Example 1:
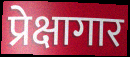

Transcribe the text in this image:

प्रेक्षागार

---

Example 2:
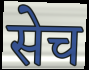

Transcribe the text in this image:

सेच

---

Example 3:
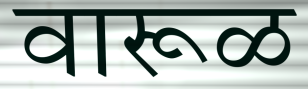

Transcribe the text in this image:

वारूळ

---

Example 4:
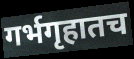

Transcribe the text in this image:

गर्भगृहातच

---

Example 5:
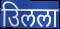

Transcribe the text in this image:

उिलला